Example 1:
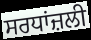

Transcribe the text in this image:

ਸਰਧਾਂਜ਼ਲੀ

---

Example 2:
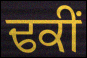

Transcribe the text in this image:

ਢਕੀਂ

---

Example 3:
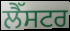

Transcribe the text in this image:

ਲੈੱਸਟਰ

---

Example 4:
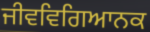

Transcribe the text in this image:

ਜੀਵਵਿਗਿਆਨਕ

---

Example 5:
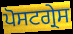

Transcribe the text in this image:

ਪੋਸਟਗ੍ਰੇਸ